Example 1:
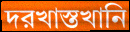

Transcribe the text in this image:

দরখাস্তখানি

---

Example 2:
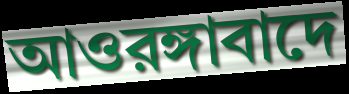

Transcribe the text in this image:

আওরঙ্গাবাদে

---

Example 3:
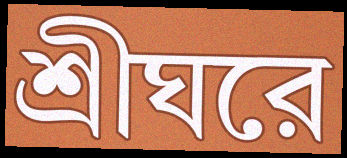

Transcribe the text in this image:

শ্রীঘরে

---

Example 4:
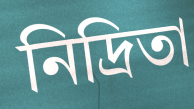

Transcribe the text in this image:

নিদ্রিতা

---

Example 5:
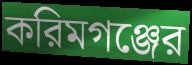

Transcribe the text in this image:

করিমগঞ্জের